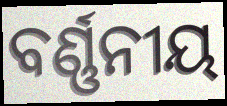
ବର୍ଣ୍ଣନୀୟ